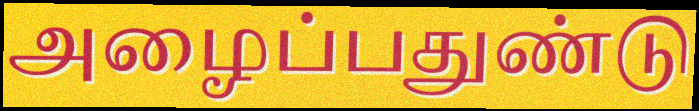
அழைப்பதுண்டு